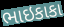
ભાઇકાકા